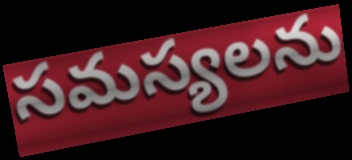
సమస్యలను